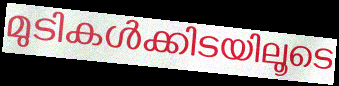
മുടികൾക്കിടയിലൂടെ